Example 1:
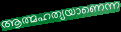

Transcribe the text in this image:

ആത്മഹത്യയാണെന്ന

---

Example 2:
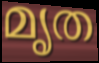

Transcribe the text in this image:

മൃത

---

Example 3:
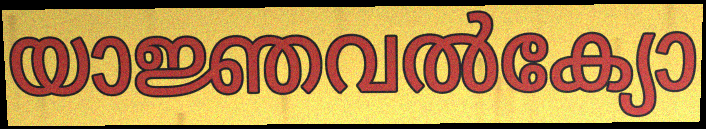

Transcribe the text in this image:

യാജ്ഞവൽക്യോ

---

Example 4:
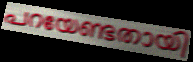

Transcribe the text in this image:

പറയേണ്ടതായി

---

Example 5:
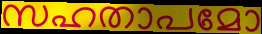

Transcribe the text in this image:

സഹതാപമോ